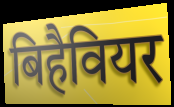
बिहैवियर